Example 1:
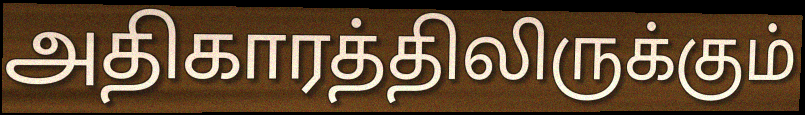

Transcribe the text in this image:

அதிகாரத்திலிருக்கும்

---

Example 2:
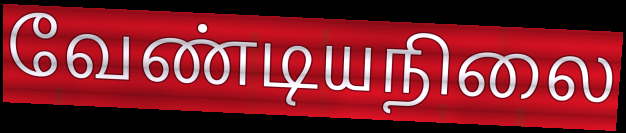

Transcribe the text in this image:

வேண்டியநிலை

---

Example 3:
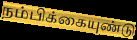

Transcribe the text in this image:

நம்பிக்கையுண்டு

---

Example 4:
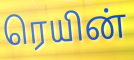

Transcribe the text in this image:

ரெயின்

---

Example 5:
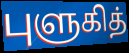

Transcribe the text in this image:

புளுகித்